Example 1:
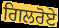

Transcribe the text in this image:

ਗਿਲਰੋਏ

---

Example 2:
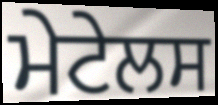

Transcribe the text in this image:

ਮੇਟੇਲਸ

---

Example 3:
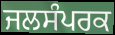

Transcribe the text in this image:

ਜਲਸੰਪਰਕ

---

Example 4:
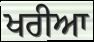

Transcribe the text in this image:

ਖਰੀਆ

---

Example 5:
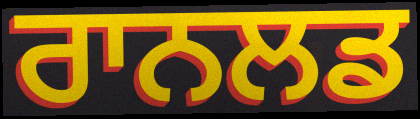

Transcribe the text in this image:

ਰਾਨਲਡ